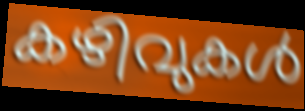
കഴിവുകൾ